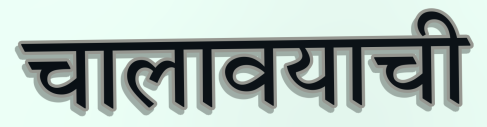
चालावयाची